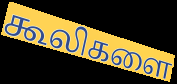
கூலிகளை